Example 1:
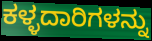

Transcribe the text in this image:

ಕಳ್ಳದಾರಿಗಳನ್ನು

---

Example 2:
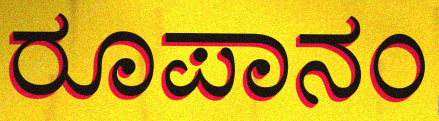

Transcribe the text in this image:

ರೂಪಾನಂ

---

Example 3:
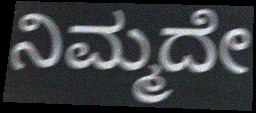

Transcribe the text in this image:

ನಿಮ್ಮದೇ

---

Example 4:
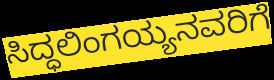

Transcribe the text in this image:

ಸಿದ್ಧಲಿಂಗಯ್ಯನವರಿಗೆ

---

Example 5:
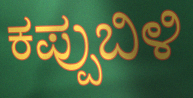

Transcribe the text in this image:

ಕಪ್ಪುಬಿಳಿ